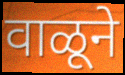
वाळूने